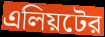
এলিয়টের